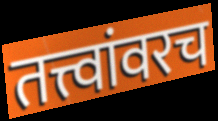
तत्त्वांवरच